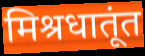
मिश्रधातूंत